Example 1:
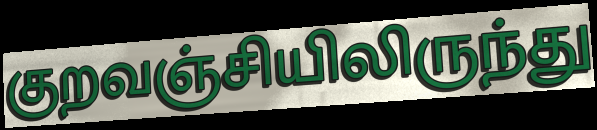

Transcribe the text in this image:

குறவஞ்சியிலிருந்து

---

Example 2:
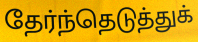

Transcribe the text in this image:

தேர்ந்தெடுத்துக்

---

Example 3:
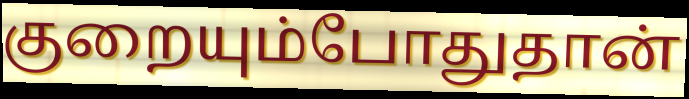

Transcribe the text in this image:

குறையும்போதுதான்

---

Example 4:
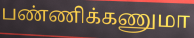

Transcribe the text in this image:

பண்ணிக்கணுமா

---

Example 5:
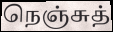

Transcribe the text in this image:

நெஞ்சுத்